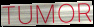
TUMOR